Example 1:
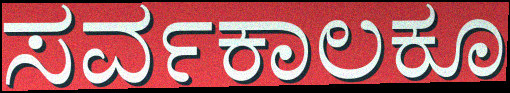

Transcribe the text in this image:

ಸರ್ವಕಾಲಕೂ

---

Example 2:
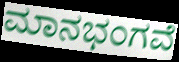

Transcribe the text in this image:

ಮಾನಭಂಗವೆ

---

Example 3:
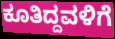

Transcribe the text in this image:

ಕೂತಿದ್ದವಳಿಗೆ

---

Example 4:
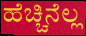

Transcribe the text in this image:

ಹೆಚ್ಚಿನೆಲ್ಲ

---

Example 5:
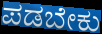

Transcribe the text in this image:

ಪಡಬೇಕು